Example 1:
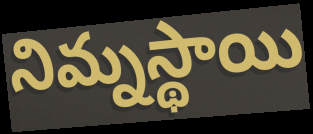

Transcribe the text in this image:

నిమ్నస్థాయి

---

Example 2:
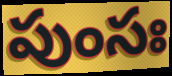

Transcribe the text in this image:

పుంసః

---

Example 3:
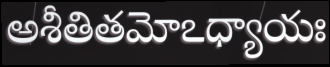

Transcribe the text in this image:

అశీతితమోఽధ్యాయః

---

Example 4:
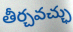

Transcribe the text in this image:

తీర్చవచ్ఛు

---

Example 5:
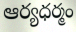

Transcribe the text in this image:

ఆర్యధర్మం